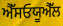
ਐੱਸਓਯੂਐੱਲ